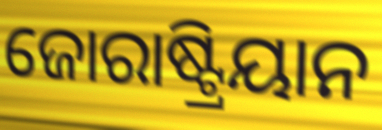
ଜୋରାଷ୍ଟ୍ରିୟାନ